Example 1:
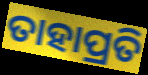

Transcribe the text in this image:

ତାହାପ୍ରତି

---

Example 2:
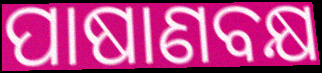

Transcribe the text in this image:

ପାଷାଣବକ୍ଷ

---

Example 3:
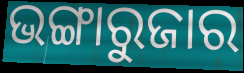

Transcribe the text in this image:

ଭଙ୍ଗାରୁଜାର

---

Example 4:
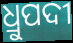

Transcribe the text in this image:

ଧ୍ରୁପଦୀ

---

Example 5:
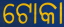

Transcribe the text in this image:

ଟୋକା